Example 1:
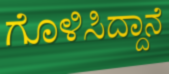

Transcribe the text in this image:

ಗೊಳಿಸಿದ್ದಾನೆ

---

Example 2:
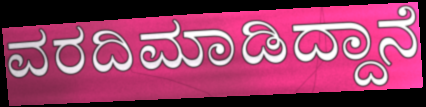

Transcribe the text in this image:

ವರದಿಮಾಡಿದ್ದಾನೆ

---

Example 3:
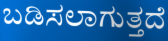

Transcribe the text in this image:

ಬಡಿಸಲಾಗುತ್ತದೆ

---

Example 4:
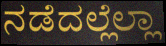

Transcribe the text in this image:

ನಡೆದಲ್ಲೆಲ್ಲಾ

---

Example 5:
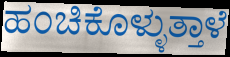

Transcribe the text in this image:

ಹಂಚಿಕೊಳ್ಳುತ್ತಾಳೆ